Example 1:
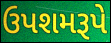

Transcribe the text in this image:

ઉપશમરૂપે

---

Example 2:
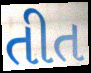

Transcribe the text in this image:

તીત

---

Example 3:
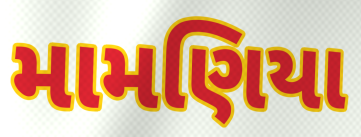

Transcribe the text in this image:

મામણિયા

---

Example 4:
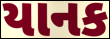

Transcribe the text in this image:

યાનક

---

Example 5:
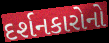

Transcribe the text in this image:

દર્શનકારોનો